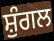
ਸ਼ੁੰਗਲ